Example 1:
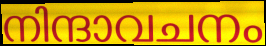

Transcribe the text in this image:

നിന്ദാവചനം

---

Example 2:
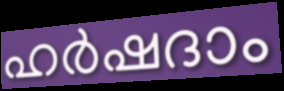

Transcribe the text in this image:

ഹർഷദാം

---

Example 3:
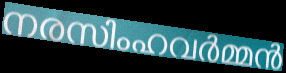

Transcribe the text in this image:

നരസിംഹവർമ്മൻ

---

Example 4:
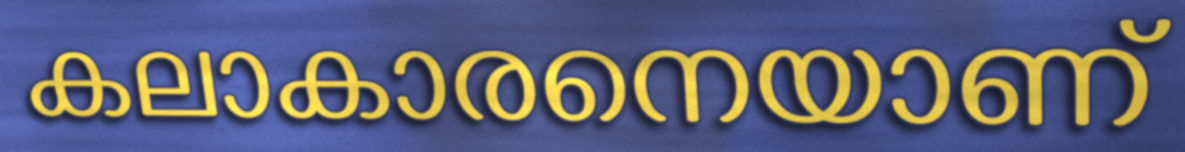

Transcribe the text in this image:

കലാകാരനെയാണ്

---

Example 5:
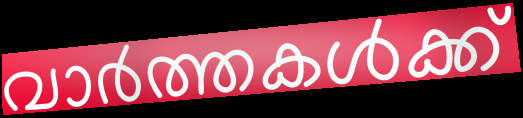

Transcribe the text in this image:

വാർത്തകൾക്ക്